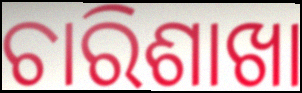
ଚାରିଶାଖା